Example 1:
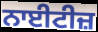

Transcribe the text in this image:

ਨਾਈਟੀਜ਼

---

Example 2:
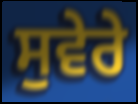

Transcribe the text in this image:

ਸੁਵੇਰੇ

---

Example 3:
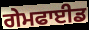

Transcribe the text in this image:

ਗੇਮਫਾਈਡ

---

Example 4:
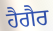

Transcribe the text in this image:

ਹੈਗੈਰ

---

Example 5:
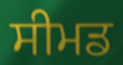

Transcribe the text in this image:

ਸੀਮਡ